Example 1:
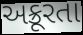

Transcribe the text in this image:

અક્રૂરતા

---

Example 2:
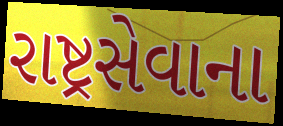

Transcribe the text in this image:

રાષ્ટ્રસેવાના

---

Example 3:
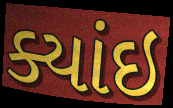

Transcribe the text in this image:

ક્યાંઇ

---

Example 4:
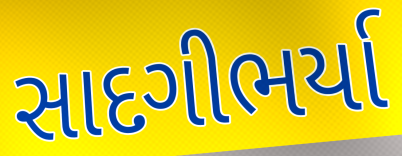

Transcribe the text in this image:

સાદગીભર્યા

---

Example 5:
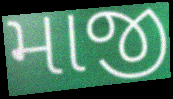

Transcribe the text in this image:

માજી